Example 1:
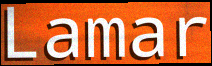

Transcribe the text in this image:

Lamar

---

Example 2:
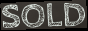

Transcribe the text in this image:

SOLD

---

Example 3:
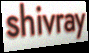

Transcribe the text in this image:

shivray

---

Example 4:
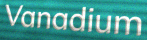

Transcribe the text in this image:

Vanadium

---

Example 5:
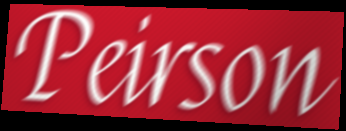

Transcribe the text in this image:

Peirson